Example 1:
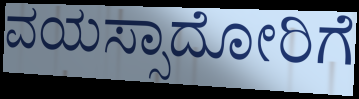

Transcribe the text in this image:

ವಯಸ್ಸಾದೋರಿಗೆ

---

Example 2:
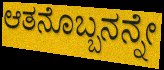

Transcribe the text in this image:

ಆತನೊಬ್ಬನನ್ನೇ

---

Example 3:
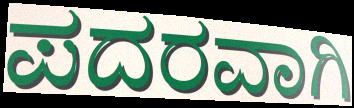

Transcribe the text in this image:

ಪದರವಾಗಿ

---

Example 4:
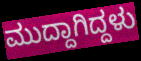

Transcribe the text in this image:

ಮುದ್ದಾಗಿದ್ದಳು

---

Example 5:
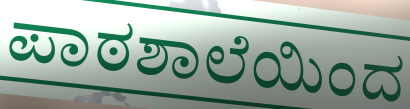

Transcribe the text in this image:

ಪಾಠಶಾಲೆಯಿಂದ